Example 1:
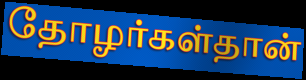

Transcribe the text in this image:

தோழர்கள்தான்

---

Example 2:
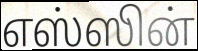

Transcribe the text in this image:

எஸ்ஸின்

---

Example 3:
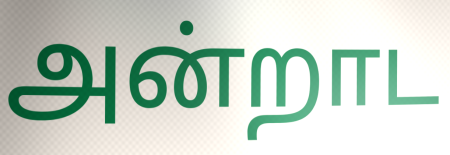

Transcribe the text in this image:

அன்றாட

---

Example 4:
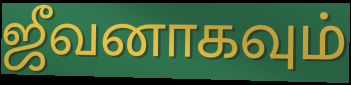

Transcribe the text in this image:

ஜீவனாகவும்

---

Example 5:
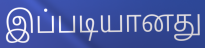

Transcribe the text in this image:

இப்படியானது